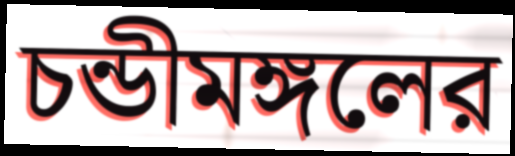
চন্ডীমঙ্গলের